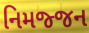
નિમજ્જન